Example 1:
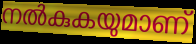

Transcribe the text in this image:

നൽകുകയുമാണ്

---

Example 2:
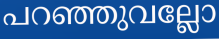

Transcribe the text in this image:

പറഞ്ഞുവല്ലോ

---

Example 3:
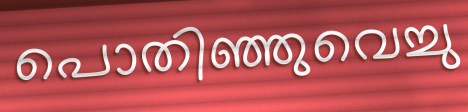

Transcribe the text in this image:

പൊതിഞ്ഞുവെച്ചു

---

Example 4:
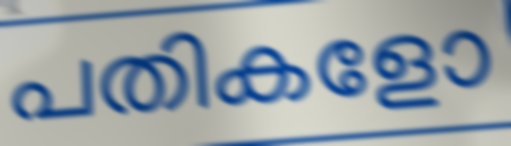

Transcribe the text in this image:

പതികളോ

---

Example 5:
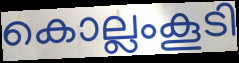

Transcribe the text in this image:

കൊല്ലംകൂടി